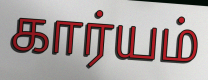
கார்யம்